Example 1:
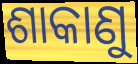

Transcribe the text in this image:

ଶାକାଣୁ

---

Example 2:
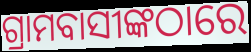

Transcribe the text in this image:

ଗ୍ରାମବାସୀଙ୍କଠାରେ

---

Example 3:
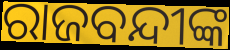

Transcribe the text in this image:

ରାଜବନ୍ଦୀଙ୍କ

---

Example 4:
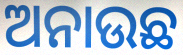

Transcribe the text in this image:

ଅନାଉଛ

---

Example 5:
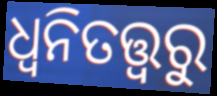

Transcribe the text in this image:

ଧ୍ୱନିତତ୍ତ୍ୱରୁ